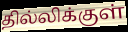
தில்லிக்குள்